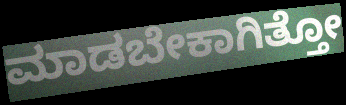
ಮಾಡಬೇಕಾಗಿತ್ತೋ